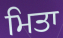
ਮਿਤਾ